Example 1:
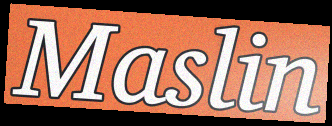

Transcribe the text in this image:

Maslin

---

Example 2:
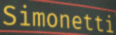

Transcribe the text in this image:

Simonetti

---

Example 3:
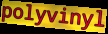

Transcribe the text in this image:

polyvinyl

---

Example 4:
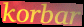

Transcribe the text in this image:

korbar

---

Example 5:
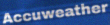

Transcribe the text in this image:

Accuweather